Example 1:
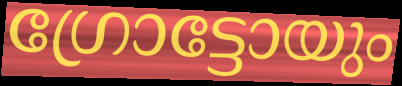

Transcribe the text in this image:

ഗ്രോട്ടോയും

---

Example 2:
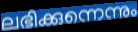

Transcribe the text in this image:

ലഭിക്കുന്നെന്നും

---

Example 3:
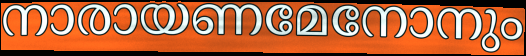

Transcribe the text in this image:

നാരായണമേനോനും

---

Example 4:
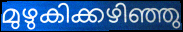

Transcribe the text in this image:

മുഴുകിക്കഴിഞ്ഞു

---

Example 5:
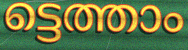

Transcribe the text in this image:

ട്ടെത്താം